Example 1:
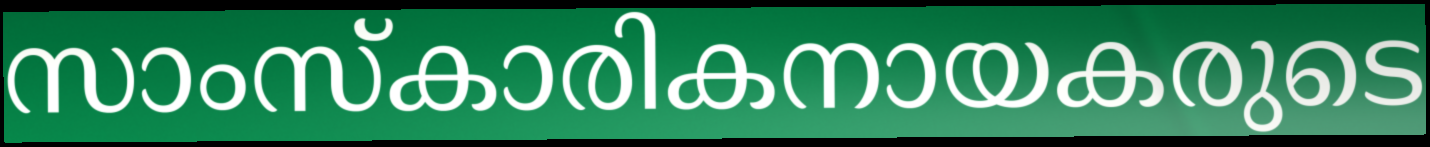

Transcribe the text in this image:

സാംസ്കാരികനായകരുടെ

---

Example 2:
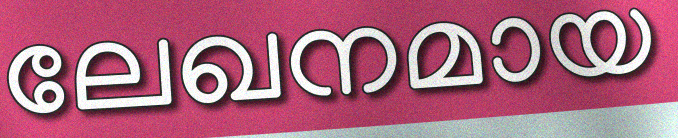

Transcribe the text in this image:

ലേഖനമായ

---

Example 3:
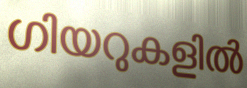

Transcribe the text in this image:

ഗിയറുകളിൽ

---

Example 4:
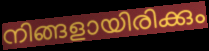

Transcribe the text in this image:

നിങ്ങളായിരിക്കും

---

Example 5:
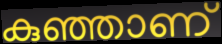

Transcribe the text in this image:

കുഞ്ഞാണ്